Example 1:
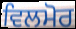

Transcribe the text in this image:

ਵਿਲਮੋਰ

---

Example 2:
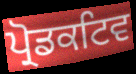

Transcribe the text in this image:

ਪ੍ਰੋਡਕਟਿਵ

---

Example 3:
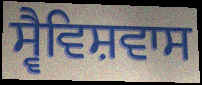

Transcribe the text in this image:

ਸ੍ਵੈਵਿਸ਼ਵਾਸ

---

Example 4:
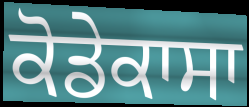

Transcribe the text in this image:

ਕੋਡੇਕਾਸਾ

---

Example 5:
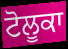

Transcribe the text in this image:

ਟੋਲੂਕਾ